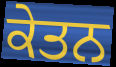
ਕੇਤਨ